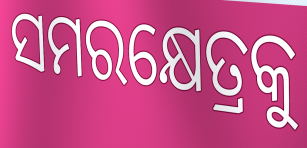
ସମରକ୍ଷେତ୍ରକୁ